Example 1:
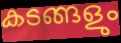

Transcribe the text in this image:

കടങ്ങളും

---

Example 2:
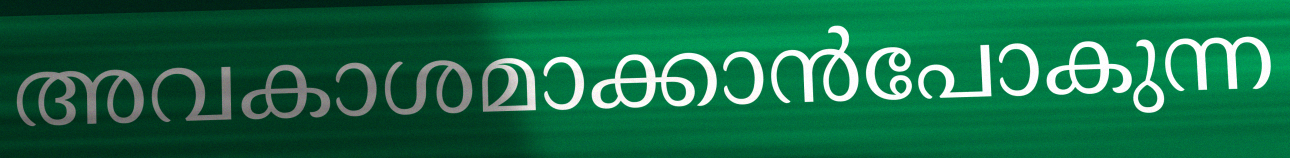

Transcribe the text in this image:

അവകാശമാക്കാൻപോകുന്ന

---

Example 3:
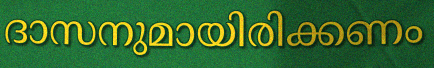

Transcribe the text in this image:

ദാസനുമായിരിക്കണം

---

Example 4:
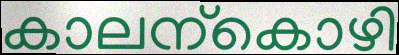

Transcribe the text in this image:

കാലന്കൊഴി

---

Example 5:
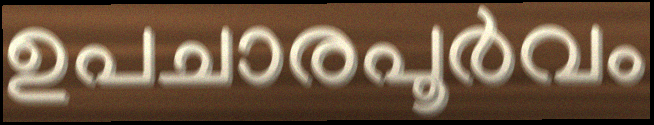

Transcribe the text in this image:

ഉപചാരപൂർവം